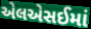
એલએસઈમાં